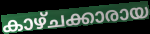
കാഴ്ചക്കാരായ